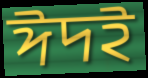
ঈদই